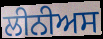
ਲੀਨੀਅਸ